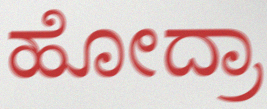
ಹೋದ್ರಾ